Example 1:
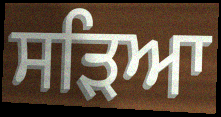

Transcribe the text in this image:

ਸੜਿਆ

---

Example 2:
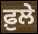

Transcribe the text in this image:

ਫ਼ੁਲੇ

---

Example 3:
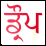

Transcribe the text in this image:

ਡ੍ਰੌਪ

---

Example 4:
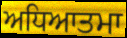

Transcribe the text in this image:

ਅਧਿਆਤਮਾ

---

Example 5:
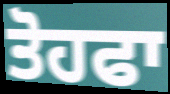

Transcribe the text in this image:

ਤੋਹਫਾ